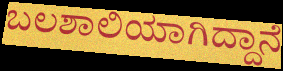
ಬಲಶಾಲಿಯಾಗಿದ್ದಾನೆ